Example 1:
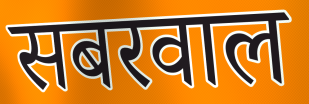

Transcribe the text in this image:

सबरवाल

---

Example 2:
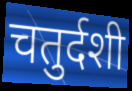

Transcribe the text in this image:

चतुर्दशी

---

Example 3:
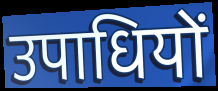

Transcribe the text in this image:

उपाधियों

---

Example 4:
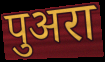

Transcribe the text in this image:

पुअरा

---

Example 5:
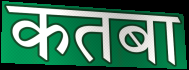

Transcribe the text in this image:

कतबा